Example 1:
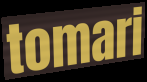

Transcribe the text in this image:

tomari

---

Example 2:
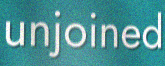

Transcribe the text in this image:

unjoined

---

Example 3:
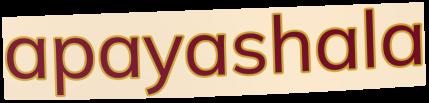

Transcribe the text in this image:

apayashala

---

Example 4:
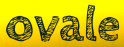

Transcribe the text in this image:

ovale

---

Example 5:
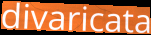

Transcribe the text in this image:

divaricata